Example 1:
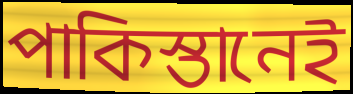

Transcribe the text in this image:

পাকিস্তানেই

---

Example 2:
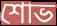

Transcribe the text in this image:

শোভ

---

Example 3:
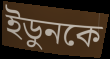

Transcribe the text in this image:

ইডুনকে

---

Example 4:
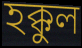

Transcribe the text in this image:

হক্কুল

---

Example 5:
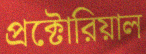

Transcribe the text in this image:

প্রক্টোরিয়াল